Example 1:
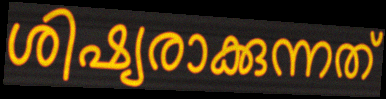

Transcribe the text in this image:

ശിഷ്യരാക്കുന്നത്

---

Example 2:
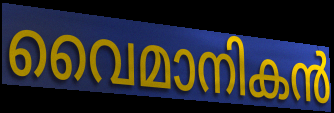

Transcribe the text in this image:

വൈമാനികൻ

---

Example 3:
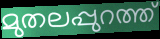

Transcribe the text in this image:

മുതലപ്പുറത്ത്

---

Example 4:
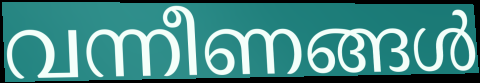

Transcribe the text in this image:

വന്നീണങ്ങൾ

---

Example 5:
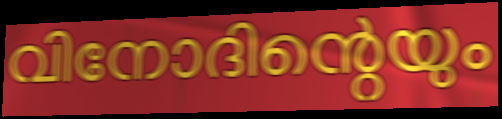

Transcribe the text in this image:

വിനോദിന്റെയും